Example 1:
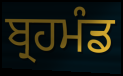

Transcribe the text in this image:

ਬ੍ਰਹਮੰਡ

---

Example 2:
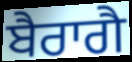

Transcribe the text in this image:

ਬੈਰਾਗੈ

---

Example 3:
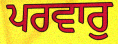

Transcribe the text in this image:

ਪਰਵਾਰੁ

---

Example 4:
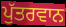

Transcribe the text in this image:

ਪੁੱਤਰਵਾਨ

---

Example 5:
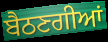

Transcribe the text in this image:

ਬੈਠਣਗੀਆਂ